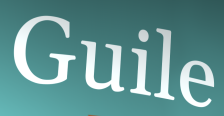
Guile